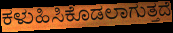
ಕಳುಹಿಸಿಕೊಡಲಾಗುತ್ತದೆ